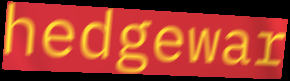
hedgewar